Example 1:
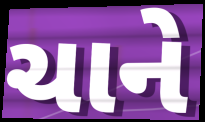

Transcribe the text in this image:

ચાને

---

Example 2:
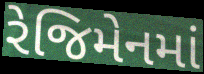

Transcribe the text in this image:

રેજિમેનમાં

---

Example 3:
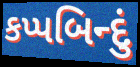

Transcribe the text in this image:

કપ્પબિન્દું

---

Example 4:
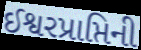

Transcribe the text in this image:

ઈશ્વરપ્રાપ્તિની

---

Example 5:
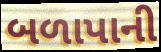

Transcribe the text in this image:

બળાપાની